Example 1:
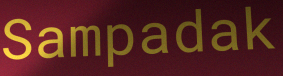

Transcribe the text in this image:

Sampadak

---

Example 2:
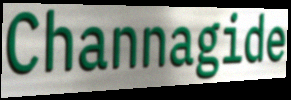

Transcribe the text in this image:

Channagide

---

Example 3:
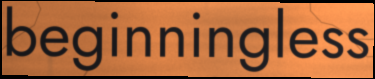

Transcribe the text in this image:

beginningless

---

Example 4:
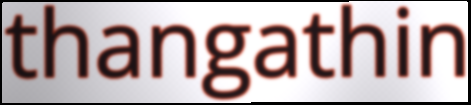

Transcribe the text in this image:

thangathin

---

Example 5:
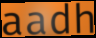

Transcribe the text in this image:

aadh